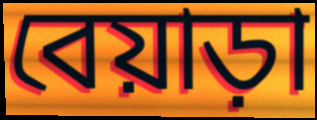
বেয়াড়া